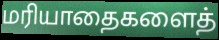
மரியாதைகளைத்